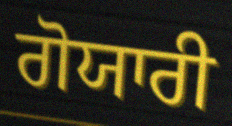
ਗੋਯਾਰੀ